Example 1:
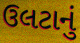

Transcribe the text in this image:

ઉલટાનું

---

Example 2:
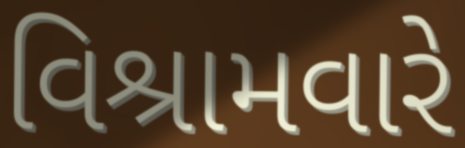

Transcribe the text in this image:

વિશ્રામવારે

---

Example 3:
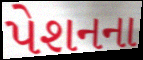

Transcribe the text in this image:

પેશનના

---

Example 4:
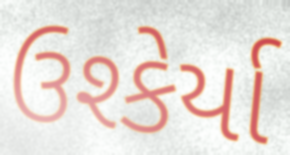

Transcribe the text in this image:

ઉશ્કેર્યા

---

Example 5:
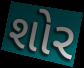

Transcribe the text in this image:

શોર